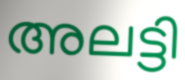
അലട്ടി